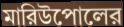
মারিউপোলের